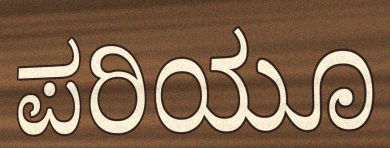
ಪರಿಯೂ